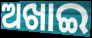
ଅଖାଇ